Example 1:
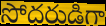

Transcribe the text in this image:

సోదరుడిగా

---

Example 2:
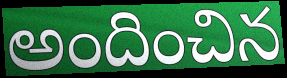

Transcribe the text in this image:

అందించిన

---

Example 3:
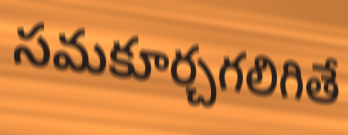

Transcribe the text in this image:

సమకూర్చగలిగితే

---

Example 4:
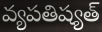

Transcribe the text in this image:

వ్యపతిష్యత్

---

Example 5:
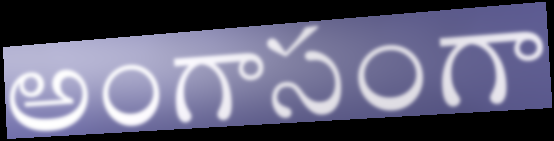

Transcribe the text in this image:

అంగాసంగా